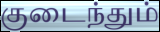
குடைந்தும்